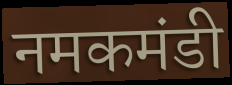
नमकमंडी